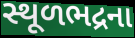
સ્થૂળભદ્રના